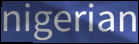
nigerian